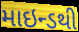
માઇન્ડથી